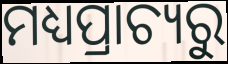
ମଧ୍ୟପ୍ରାଚ୍ୟରୁ